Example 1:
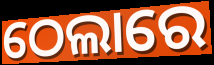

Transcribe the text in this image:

ଠେଲାରେ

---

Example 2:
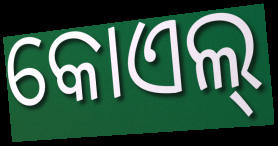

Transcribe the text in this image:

କୋଏଲ୍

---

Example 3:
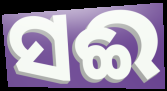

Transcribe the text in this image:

ସଈ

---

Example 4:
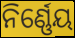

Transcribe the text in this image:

ନିର୍ଣ୍ଣେୟ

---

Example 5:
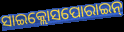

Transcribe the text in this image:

ସାଇକ୍ଲୋସପୋରାଇନ୍